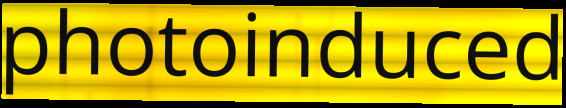
photoinduced